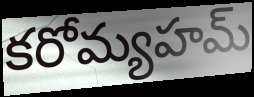
కరోమ్యహమ్